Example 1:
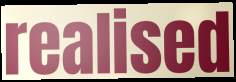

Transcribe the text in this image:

realised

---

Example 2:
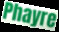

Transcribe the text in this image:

Phayre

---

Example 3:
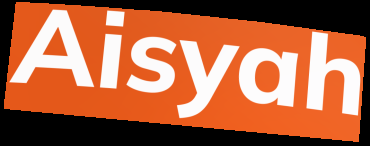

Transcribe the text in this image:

Aisyah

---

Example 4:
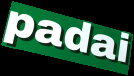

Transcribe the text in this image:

padai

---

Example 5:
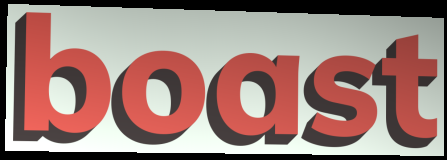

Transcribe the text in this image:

boast